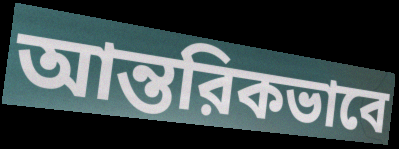
আন্তরিকভাবে